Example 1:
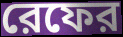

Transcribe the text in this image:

রেফের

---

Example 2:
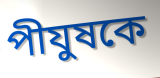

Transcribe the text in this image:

পীযুষকে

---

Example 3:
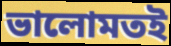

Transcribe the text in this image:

ভালোমতই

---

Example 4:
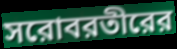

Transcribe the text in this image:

সরোবরতীরের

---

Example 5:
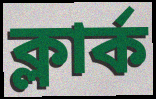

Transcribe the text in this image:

ক্লার্ক